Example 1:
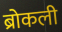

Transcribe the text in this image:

ब्रोकली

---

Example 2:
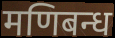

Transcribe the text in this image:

मणिबन्ध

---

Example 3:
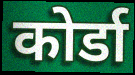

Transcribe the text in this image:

कोर्डा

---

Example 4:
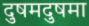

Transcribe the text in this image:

दुषमदुषमा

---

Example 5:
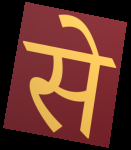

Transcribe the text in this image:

से